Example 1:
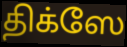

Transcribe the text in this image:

திக்ஸே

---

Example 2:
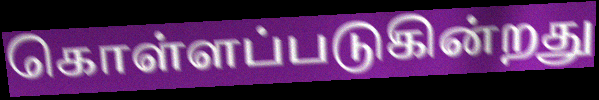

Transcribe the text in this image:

கொள்ளப்படுகின்றது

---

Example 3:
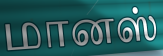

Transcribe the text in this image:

மானஸ்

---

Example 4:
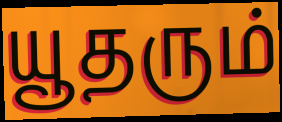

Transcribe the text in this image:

யூதரும்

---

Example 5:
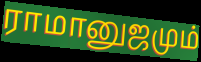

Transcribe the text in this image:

ராமானுஜமும்